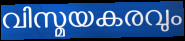
വിസ്മയകരവും